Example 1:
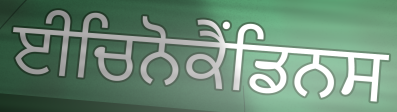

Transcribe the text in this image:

ਈਚਿਨੋਕੈਂਡਿਨਸ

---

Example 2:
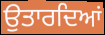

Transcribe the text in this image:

ਉਤਾਰਦਿਆਂ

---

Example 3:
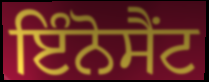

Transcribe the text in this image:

ਇੰਨੋਸੈਂਟ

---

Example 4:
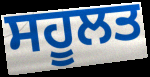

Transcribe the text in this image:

ਸਹੂਲਤ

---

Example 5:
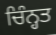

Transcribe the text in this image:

ਚਿੰਨ੍ਹਤ